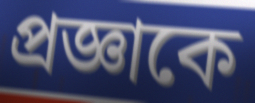
প্রজ্ঞাকে